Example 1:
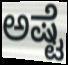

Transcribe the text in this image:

ಅಷ್ಟೆ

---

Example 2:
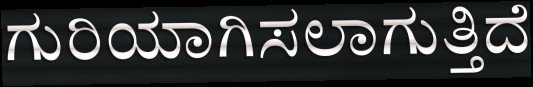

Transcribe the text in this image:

ಗುರಿಯಾಗಿಸಲಾಗುತ್ತಿದೆ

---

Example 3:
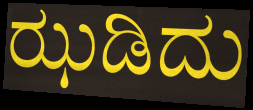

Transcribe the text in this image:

ಝಡಿದು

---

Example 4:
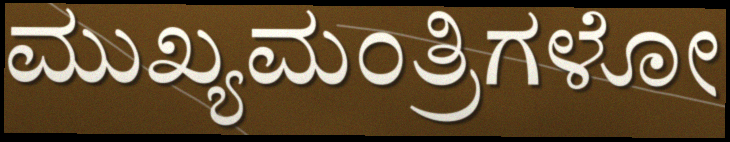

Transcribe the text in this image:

ಮುಖ್ಯಮಂತ್ರಿಗಳೋ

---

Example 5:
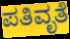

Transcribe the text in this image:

ಪತಿವೃತೆ